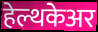
हेल्थकेअर